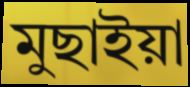
মুছাইয়া